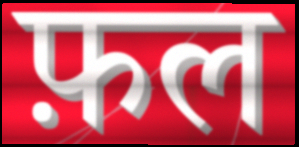
फ़ल